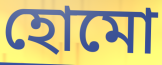
হোমো